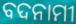
ବଦନାମୀ